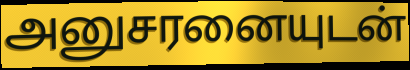
அனுசரனையுடன்